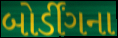
બોર્ડીંગના